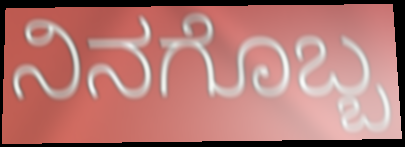
ನಿನಗೊಬ್ಬ